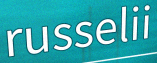
russelii